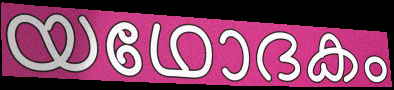
യഥോദകം